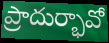
ప్రాదుర్భావో